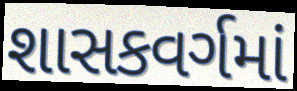
શાસકવર્ગમાં